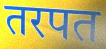
तरपत